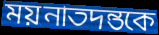
ময়নাতদন্তকে